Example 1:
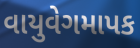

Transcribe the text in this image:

વાયુવેગમાપક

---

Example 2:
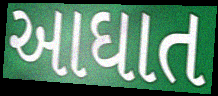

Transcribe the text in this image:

આઘાત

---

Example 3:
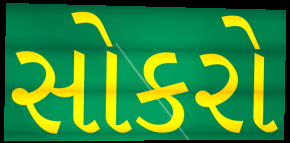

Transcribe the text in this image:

સોકરો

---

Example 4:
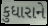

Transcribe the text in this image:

કુધારાને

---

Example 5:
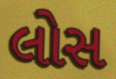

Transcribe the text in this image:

લોસ